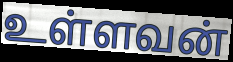
உள்ளவன்